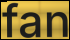
fan